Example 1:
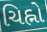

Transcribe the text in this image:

ચિહ્નો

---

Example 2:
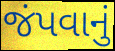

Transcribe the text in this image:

જંપવાનું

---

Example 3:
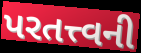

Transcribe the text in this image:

પરતત્ત્વની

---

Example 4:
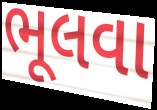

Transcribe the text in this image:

ભૂલવા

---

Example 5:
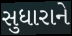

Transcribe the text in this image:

સુધારાને